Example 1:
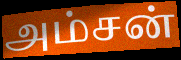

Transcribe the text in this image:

அம்சன்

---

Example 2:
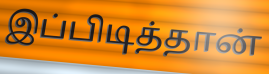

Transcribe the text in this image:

இப்பிடித்தான்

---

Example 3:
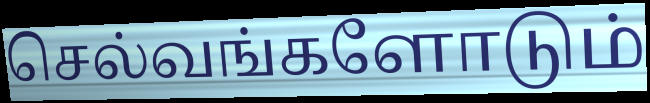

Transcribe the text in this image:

செல்வங்களோடும்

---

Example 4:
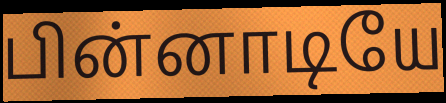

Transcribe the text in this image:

பின்னாடியே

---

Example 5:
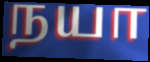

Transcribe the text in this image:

நயா